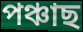
পঞ্চাছ